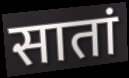
सातां